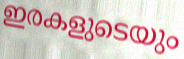
ഇരകളുടെയും